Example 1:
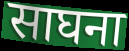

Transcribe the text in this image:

साघना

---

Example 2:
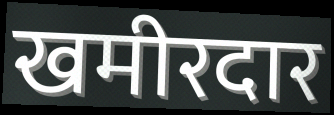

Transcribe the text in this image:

खमीरदार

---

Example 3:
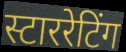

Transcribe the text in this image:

स्टाररेटिंग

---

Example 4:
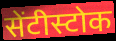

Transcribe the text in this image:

सेंटीस्टोक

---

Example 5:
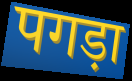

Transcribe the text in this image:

पगड़ा